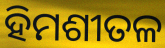
ହିମଶୀତଳ